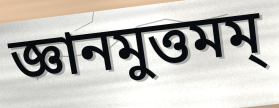
জ্ঞানমুত্তমম্